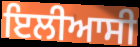
ਇਲੀਆਸੀ